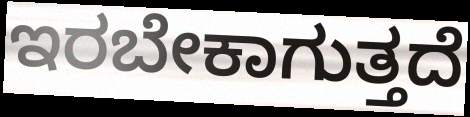
ಇರಬೇಕಾಗುತ್ತದೆ